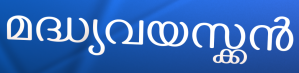
മദ്ധ്യവയസ്ക്കൻ